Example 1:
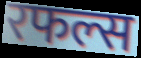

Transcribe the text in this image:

रफल्स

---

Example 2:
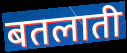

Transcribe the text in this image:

बतलाती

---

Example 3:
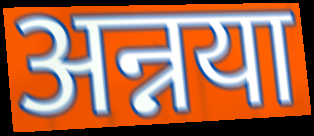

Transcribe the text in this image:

अन्नया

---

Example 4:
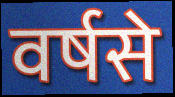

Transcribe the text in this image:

वर्षसे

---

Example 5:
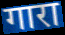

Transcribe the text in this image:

गारा